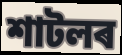
শাটলৰ